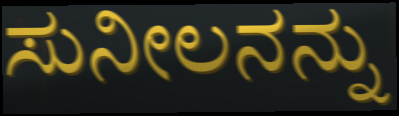
ಸುನೀಲನನ್ನು